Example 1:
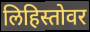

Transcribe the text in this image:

लिहिस्तोवर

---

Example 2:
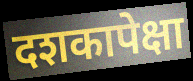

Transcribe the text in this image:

दशकापेक्षा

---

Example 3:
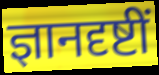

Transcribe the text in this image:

ज्ञानदृष्टीं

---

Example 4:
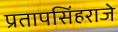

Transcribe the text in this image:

प्रतापसिंहराजे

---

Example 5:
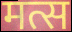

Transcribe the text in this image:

मत्स